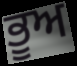
ਭੂਅ